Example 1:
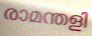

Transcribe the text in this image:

രാമന്തളി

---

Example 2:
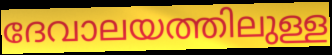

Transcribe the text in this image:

ദേവാലയത്തിലുള്ള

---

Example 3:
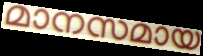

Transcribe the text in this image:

മാനസമായ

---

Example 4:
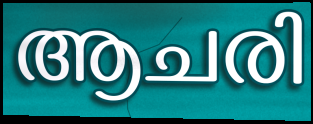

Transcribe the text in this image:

ആചരി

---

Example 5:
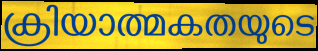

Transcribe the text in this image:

ക്രിയാത്മകതയുടെ